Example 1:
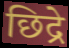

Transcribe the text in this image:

छिद्रे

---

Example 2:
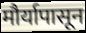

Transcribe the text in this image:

मौर्यापासून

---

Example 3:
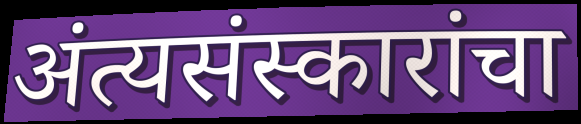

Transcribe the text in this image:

अंत्यसंस्कारांचा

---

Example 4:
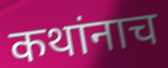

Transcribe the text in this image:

कथांनाच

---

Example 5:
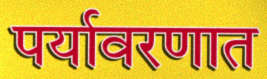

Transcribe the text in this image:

पर्यावरणात